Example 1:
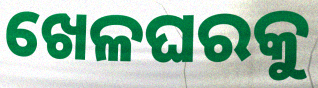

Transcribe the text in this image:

ଖେଳଘରକୁ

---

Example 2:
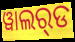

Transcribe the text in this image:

ୱାଲର୍‌ଡ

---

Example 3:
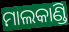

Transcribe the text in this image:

ମାଲକାଣ୍ଡି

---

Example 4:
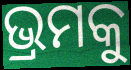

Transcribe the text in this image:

ଭ୍ରମକୁ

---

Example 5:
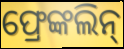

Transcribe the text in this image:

ଫ୍ରେଙ୍କଲିନ୍